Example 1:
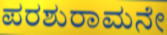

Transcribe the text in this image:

ಪರಶುರಾಮನೇ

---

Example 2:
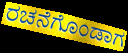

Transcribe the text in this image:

ರಚನೆಗೊಂಡಾಗ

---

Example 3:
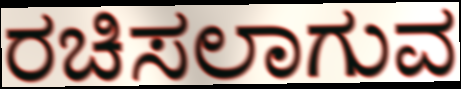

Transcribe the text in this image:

ರಚಿಸಲಾಗುವ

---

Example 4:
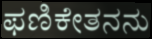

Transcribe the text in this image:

ಫಣಿಕೇತನನು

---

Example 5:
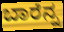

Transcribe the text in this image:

ಬಾರೆನ್ನ